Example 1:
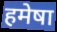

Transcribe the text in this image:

हमेषा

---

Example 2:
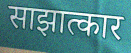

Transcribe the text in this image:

साझात्कार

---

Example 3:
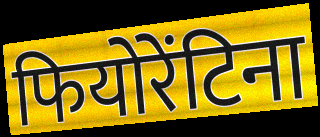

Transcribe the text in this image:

फियोरेंटिना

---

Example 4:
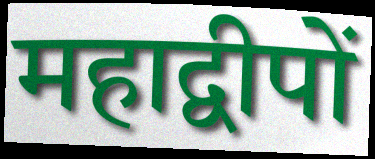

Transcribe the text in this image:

महाद्वीपों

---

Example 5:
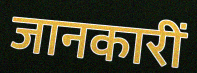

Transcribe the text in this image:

जानकारीं